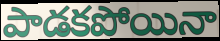
పాడకపోయినా